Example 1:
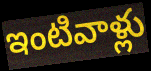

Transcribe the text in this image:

ఇంటివాళ్లు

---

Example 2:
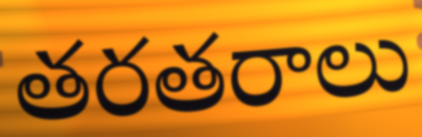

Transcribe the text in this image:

తరతరాలు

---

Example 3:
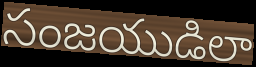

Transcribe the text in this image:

సంజయుడిలా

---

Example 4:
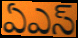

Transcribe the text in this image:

ఏఎస్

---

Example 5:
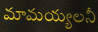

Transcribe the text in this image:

మామయ్యలనీ